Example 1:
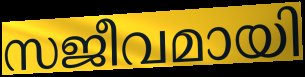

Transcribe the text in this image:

സജീവമായി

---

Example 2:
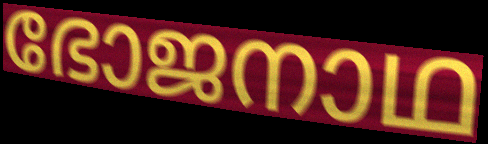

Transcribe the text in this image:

ഭോജനാഥ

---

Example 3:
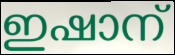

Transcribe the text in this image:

ഇഷാന്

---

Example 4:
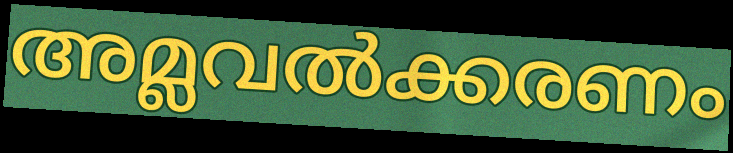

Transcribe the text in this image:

അമ്ലവൽക്കരണം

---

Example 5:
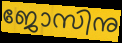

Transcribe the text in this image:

ജോസിനു